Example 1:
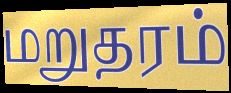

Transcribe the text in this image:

மறுதரம்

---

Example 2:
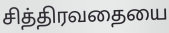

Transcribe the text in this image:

சித்திரவதையை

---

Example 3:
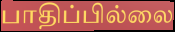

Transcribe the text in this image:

பாதிப்பில்லை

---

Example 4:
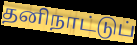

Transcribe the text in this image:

தனிநாட்டுப்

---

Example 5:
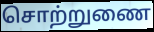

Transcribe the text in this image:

சொற்றுணை